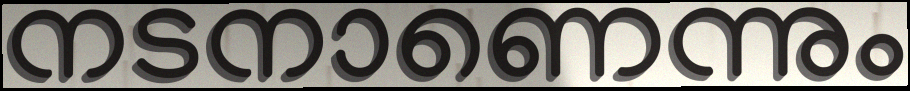
നടനാണെന്നും